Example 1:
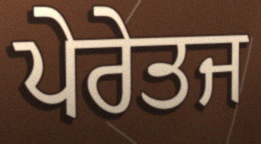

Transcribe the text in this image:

ਪੇਰੇਤਜ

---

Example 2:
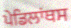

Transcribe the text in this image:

ਪੇਡਿਲਾਂਥਸ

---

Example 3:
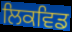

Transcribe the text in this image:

ਲਿਕਵਿਡ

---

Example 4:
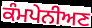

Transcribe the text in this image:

ਕੰਮਪੇਨੀਅਣ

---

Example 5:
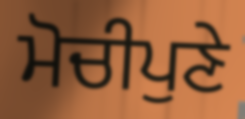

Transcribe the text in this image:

ਮੋਚੀਪੁਣੇ